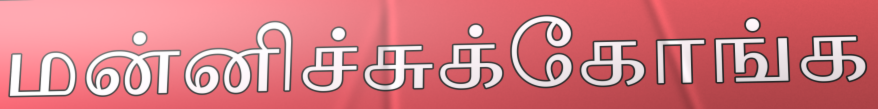
மன்னிச்சுக்கோங்க